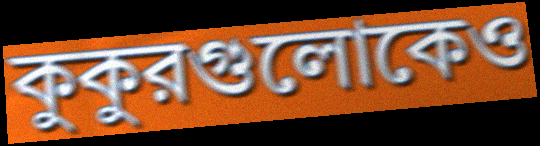
কুকুরগুলোকেও